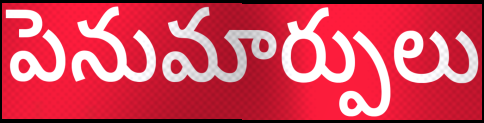
పెనుమార్పులు